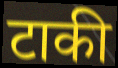
टाकी